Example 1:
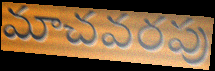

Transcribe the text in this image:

మాచవరపు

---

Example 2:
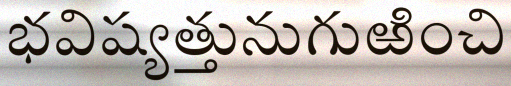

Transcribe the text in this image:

భవిష్యత్తునుగుఱించి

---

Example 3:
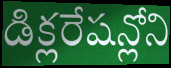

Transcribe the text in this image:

డిక్లరేషన్లోని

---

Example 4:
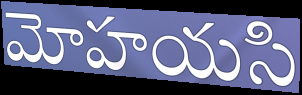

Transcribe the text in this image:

మోహయసి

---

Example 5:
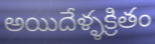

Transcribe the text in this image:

అయిదేళ్ళక్రితం